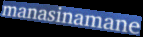
manasinamane